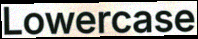
Lowercase